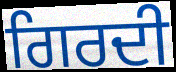
ਗਿਰਦੀ